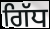
ਗਿੱਧ